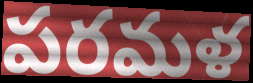
పరమళ